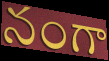
నంగా